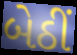
બેઠીં